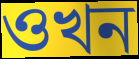
ওখন